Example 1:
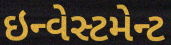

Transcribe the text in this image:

ઇન્વેસ્ટમેન્ટ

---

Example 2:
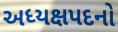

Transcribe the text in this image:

અધ્યક્ષપદનો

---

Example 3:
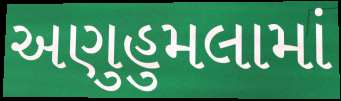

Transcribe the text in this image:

અણુહુમલામાં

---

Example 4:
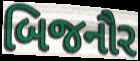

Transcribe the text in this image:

બિજનૌર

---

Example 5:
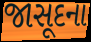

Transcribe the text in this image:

જાસૂદના